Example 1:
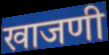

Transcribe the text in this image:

खाजणी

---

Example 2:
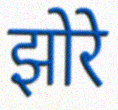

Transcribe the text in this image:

झोरे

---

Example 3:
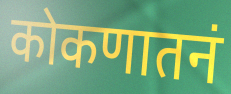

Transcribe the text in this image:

कोकणातनं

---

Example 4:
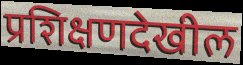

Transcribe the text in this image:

प्रशिक्षणदेखील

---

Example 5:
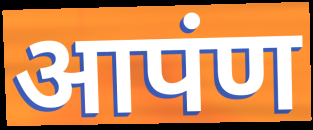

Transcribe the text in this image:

आपंण